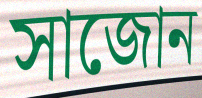
সাজোন